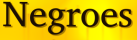
Negroes